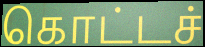
கொட்டச்